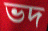
ভদ